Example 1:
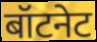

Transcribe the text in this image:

बॉटनेट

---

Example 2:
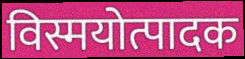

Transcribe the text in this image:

विस्मयोत्पादक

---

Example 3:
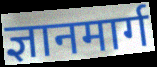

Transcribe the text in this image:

ज्ञानमार्ग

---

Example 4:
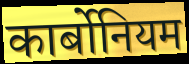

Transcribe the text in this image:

कार्बोनियम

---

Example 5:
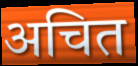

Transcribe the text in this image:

अचित